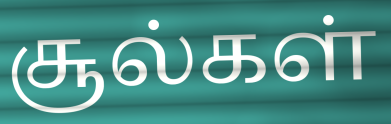
சூல்கள்